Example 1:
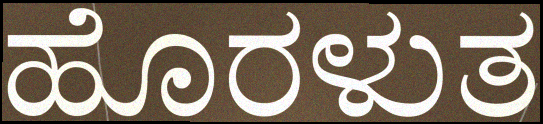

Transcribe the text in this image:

ಹೊರಳುತ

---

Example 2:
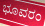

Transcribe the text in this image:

ಭೂವರಂ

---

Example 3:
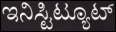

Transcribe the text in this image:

ಇನಿಸ್ಟಿಟ್ಯೂಟ್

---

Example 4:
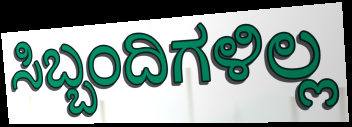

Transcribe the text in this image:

ಸಿಬ್ಬಂದಿಗಳಿಲ್ಲ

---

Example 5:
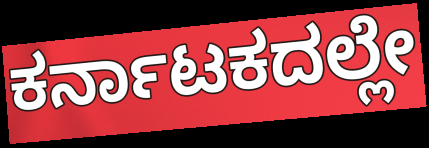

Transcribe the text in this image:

ಕರ್ನಾಟಕದಲ್ಲೇ